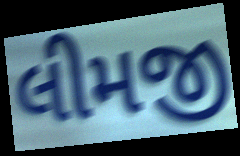
લીમજી